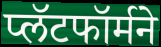
प्लॅटफॉर्मने